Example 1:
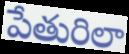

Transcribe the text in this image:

పేతురిలా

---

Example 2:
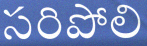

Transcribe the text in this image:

సరిపోలి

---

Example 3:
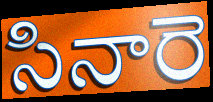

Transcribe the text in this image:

సినారె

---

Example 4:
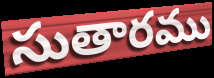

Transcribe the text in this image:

సుతారము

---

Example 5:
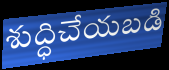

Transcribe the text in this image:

శుద్ధిచేయబడి